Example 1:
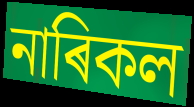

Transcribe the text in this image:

নাৰিকল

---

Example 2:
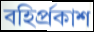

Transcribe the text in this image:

বহিৰ্প্ৰকাশ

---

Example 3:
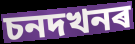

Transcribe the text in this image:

চনদখনৰ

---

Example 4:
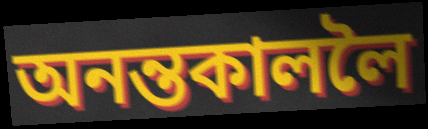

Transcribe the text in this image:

অনন্তকাললৈ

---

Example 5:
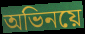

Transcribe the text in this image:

অভিনয়ে